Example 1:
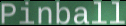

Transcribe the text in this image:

Pinball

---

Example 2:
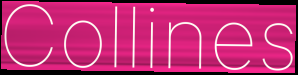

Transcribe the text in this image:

Collines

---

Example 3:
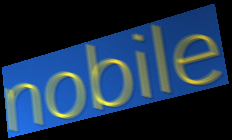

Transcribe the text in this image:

nobile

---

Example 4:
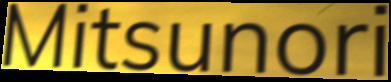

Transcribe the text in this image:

Mitsunori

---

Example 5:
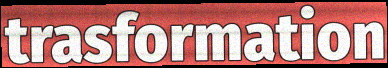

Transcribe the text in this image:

trasformation